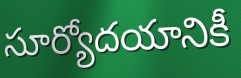
సూర్యోదయానికీ